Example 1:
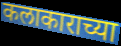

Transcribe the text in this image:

कलाकाराच्या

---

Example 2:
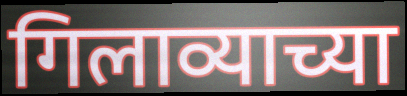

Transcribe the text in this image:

गिलाव्याच्या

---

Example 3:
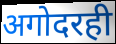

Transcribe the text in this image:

अगोदरही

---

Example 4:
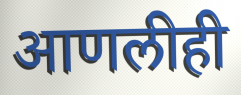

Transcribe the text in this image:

आणलीही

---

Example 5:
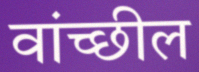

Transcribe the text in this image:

वांच्छील